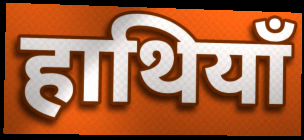
हाथियाँ